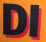
DI